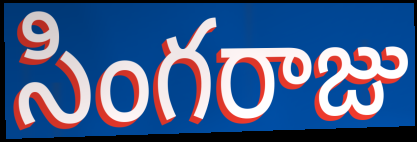
సింగరాజు